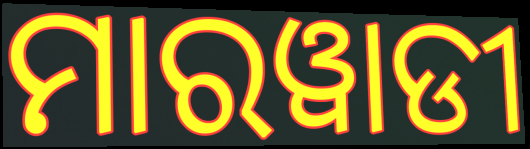
ମାରୱାଡୀ